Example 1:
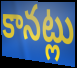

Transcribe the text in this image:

కానట్లు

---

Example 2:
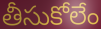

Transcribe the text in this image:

తీసుకోలేం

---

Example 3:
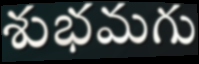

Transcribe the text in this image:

శుభమగు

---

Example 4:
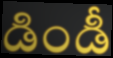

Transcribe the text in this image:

డిండీ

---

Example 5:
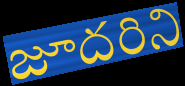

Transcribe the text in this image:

జూదరిని